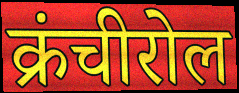
क्रंचीरोल